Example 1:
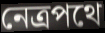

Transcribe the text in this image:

নেত্রপথে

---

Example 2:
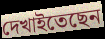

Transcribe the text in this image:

দেখাইতেছেন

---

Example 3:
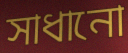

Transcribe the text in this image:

সাধানো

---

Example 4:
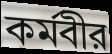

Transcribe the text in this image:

কর্মবীর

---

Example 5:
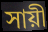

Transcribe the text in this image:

সায়ী